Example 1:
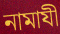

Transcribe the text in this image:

নামাযী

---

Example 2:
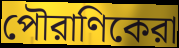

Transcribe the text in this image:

পৌরাণিকেরা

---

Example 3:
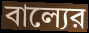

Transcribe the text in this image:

বাল্যের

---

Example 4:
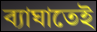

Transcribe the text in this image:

ব্যাঘাতেই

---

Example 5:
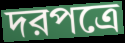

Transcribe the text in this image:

দরপত্রে